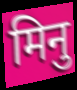
मिनु